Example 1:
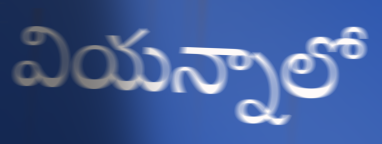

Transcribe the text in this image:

వియన్నాలో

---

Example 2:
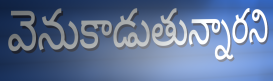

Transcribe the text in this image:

వెనుకాడుతున్నారని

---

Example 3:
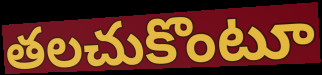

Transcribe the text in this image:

తలచుకొంటూ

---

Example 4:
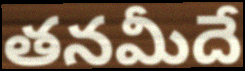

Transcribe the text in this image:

తనమీదే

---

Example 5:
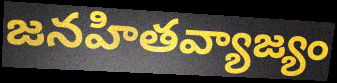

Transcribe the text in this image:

జనహితవ్యాజ్యం